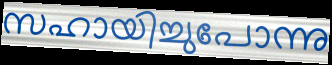
സഹായിച്ചുപോന്നു